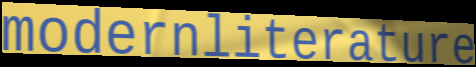
modernliterature